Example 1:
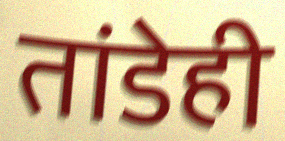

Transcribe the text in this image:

तांडेही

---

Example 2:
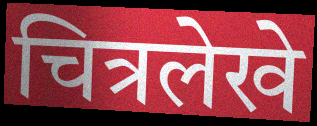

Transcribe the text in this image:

चित्रलेखे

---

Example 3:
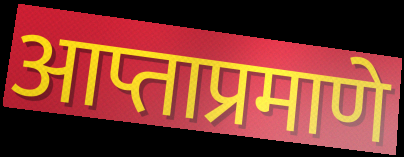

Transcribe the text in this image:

आप्ताप्रमाणे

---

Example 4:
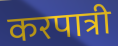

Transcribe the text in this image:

करपात्री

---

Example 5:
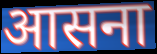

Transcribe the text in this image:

आसना